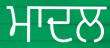
ਮਾਦਲ